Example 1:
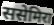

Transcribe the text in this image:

ससेमिरा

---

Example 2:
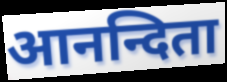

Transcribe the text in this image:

आनन्दिता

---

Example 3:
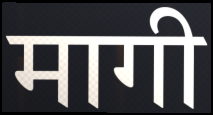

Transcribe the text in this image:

मागी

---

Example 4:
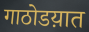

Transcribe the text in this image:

गाठोडय़ात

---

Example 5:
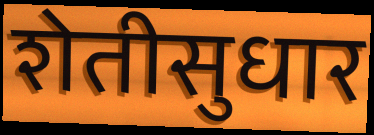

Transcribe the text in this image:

शेतीसुधार